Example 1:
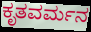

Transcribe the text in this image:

ಕೃತವರ್ಮನ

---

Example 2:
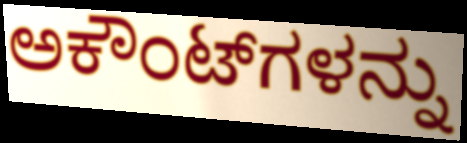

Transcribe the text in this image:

ಅಕೌಂಟ್‌ಗಳನ್ನು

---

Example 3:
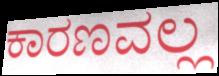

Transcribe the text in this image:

ಕಾರಣವಲ್ಲ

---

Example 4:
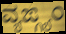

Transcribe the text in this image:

ವ್ಯಙ್ಗ್ಯಂ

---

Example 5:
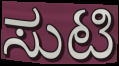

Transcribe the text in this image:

ಸುಟಿ